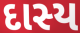
દાસ્ય